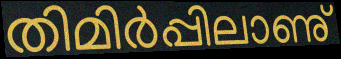
തിമിർപ്പിലാണു്